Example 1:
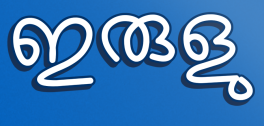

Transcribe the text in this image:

ഇരുളു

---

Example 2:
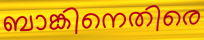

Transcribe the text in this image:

ബാങ്കിനെതിരെ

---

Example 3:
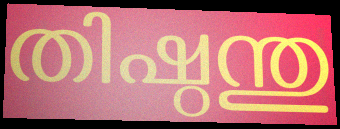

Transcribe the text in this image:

തിഷ്ഠന്തു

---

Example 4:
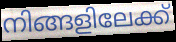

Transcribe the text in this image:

നിങ്ങളിലേക്ക്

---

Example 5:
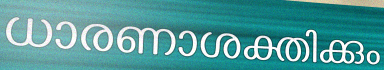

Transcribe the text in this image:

ധാരണാശക്തിക്കും